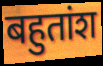
बहुतांश